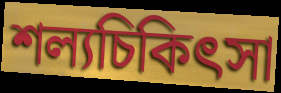
শল্যচিকিৎসা